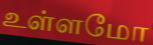
உள்ளமோ